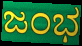
ಜಂಭ